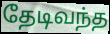
தேடிவந்த